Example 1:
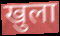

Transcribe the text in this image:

खुला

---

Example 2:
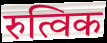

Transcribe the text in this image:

रुत्विक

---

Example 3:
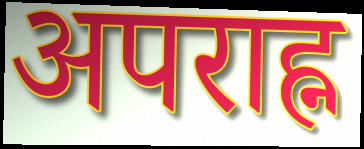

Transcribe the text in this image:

अपराह्न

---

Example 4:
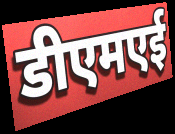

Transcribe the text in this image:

डीएमएई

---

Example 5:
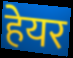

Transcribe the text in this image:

हेयर